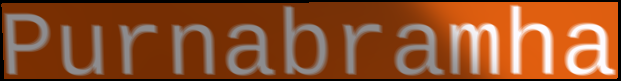
Purnabramha